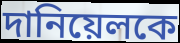
দানিয়েলকে